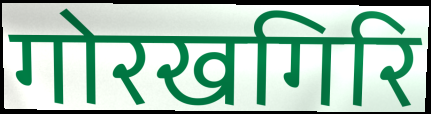
गोरखगिरि